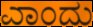
ಎಾಂದು